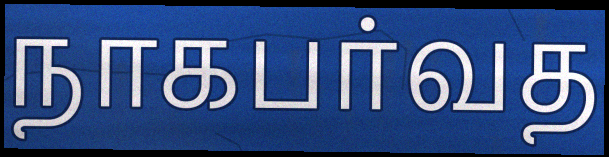
நாகபர்வத